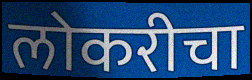
लोकरीचा